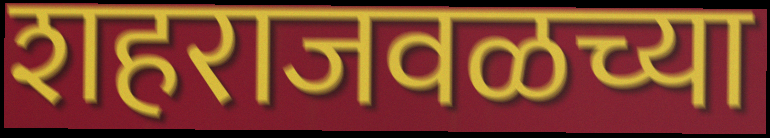
शहराजवळच्या